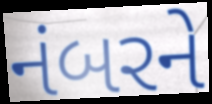
નંબરને